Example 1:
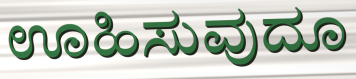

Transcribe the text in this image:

ಊಹಿಸುವುದೂ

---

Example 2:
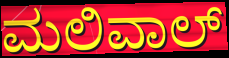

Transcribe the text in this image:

ಮಲಿವಾಲ್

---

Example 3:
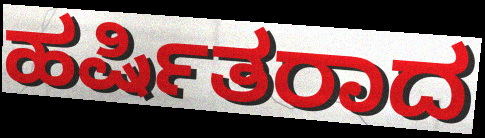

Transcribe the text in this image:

ಹರ್ಷಿತರಾದ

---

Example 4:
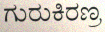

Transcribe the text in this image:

ಗುರುಕಿರಣ್ರ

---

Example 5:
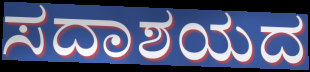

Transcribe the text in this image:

ಸದಾಶಯದ